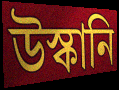
উস্কানি